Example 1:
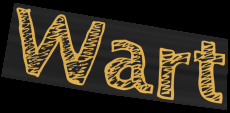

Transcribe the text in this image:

Wart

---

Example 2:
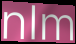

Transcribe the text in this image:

nlm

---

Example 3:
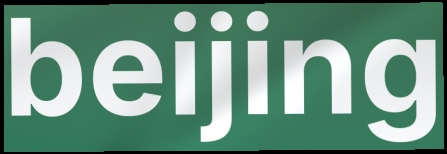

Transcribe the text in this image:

beijing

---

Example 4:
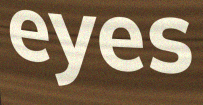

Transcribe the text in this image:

eyes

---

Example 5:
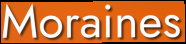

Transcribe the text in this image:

Moraines